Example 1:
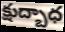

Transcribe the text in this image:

క్షుద్బాధ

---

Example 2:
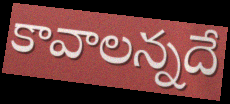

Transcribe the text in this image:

కావాలన్నదే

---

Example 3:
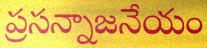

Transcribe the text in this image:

ప్రసన్నాజనేయం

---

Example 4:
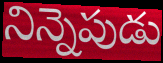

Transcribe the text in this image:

నిన్నెపుడు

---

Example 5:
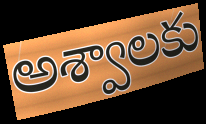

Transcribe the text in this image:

అశ్వాలకు